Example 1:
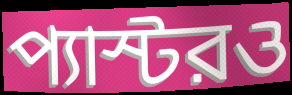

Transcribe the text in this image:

প্যাস্টরও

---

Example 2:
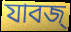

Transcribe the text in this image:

যাবজ্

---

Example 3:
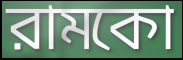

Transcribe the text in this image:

রামকো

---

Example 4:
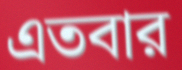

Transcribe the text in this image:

এতবার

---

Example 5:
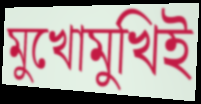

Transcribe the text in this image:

মুখোমুখিই